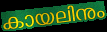
കായലിനും